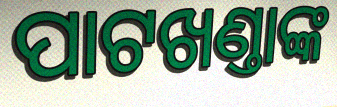
ପାଟଖଣ୍ତାଙ୍କ